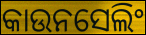
କାଉନସେଲିଂ